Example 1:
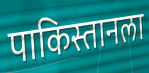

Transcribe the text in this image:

पाकिस्तानला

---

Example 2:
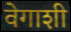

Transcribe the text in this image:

वेगाशी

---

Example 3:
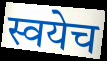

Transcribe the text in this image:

स्वयेच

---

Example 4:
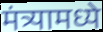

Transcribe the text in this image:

मंत्र्यामध्ये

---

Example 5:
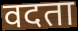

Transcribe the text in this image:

वदता